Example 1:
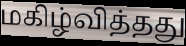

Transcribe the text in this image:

மகிழ்வித்தது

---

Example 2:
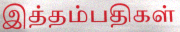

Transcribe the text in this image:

இத்தம்பதிகள்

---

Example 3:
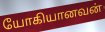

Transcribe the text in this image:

யோகியானவன்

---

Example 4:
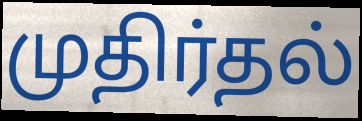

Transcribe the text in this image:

முதிர்தல்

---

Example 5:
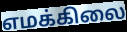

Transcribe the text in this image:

எமக்கிலை